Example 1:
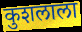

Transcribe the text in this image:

कुशलाला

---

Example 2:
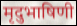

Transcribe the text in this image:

मृदुभाषिणी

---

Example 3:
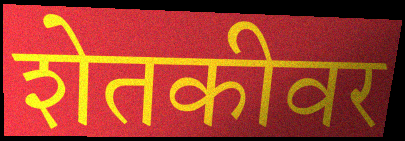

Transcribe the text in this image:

शेतकीवर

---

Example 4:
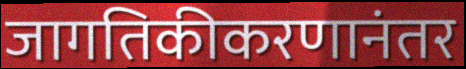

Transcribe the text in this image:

जागतिकीकरणानंतर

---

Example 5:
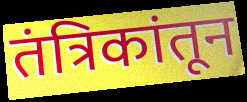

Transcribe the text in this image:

तंत्रिकांतून